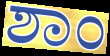
ಶಾಂ